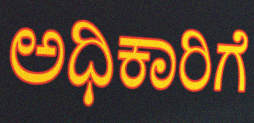
ಅಧಿಕಾರಿಗೆ